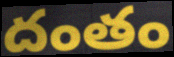
దంతం